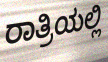
ರಾತ್ರಿಯಲ್ಲಿ